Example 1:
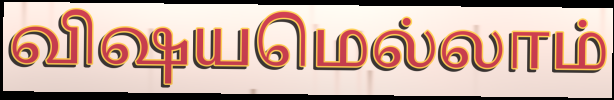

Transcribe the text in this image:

விஷயமெல்லாம்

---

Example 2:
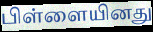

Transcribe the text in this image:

பிள்ளையினது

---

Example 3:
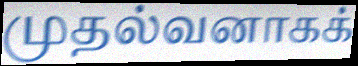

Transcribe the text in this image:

முதல்வனாகக்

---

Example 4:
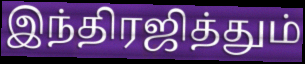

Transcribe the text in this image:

இந்திரஜித்தும்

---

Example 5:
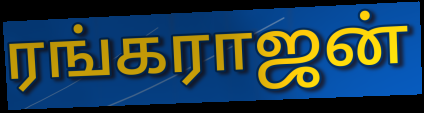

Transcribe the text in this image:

ரங்கராஜன்